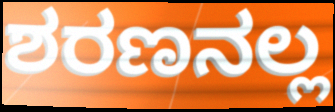
ಶರಣನಲ್ಲ